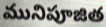
మునిపూజిత